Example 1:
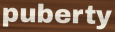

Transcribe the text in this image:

puberty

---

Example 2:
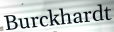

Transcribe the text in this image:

Burckhardt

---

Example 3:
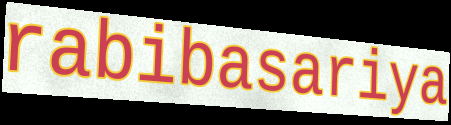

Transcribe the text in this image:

rabibasariya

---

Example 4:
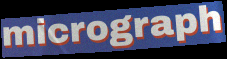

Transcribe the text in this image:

micrograph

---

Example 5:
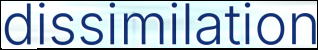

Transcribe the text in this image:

dissimilation